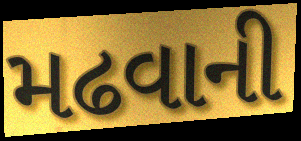
મઢવાની